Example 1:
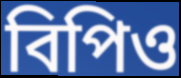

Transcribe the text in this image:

বিপিও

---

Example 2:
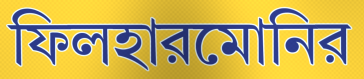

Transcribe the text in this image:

ফিলহারমোনির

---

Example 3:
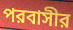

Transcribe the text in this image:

পরবাসীর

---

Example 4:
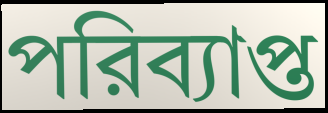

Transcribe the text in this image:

পরিব্যাপ্ত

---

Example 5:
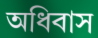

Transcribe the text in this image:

অধিবাস